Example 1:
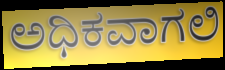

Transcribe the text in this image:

ಅಧಿಕವಾಗಲಿ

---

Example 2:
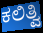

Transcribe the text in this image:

ಕಲಿತ್ವಿ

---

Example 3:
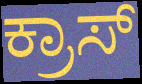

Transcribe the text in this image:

ಕ್ರಾಸ್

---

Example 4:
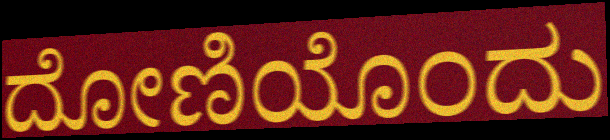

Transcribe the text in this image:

ದೋಣಿಯೊಂದು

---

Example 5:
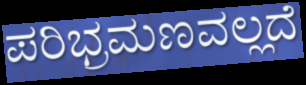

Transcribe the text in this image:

ಪರಿಭ್ರಮಣವಲ್ಲದೆ